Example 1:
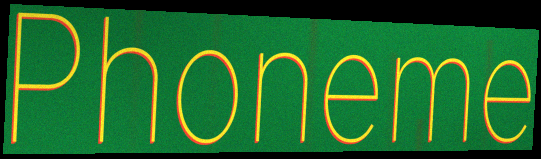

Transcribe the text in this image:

Phoneme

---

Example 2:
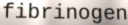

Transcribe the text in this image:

fibrinogen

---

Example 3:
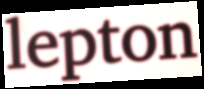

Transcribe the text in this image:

lepton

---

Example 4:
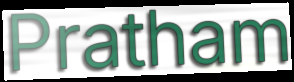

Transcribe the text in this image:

Pratham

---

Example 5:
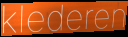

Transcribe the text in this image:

klederen